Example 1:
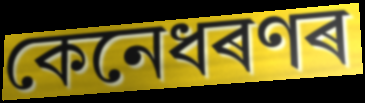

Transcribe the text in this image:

কেনেধৰণৰ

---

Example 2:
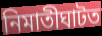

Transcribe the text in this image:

নিমাতীঘাটত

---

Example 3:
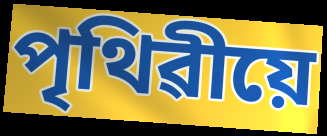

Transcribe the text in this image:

পৃথিৱীয়ে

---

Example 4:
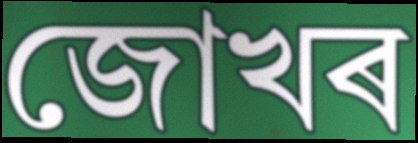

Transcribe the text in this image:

জোখৰ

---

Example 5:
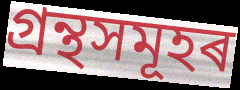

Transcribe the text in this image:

গ্ৰন্থসমূহৰ